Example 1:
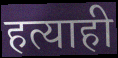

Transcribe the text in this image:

हत्याही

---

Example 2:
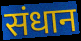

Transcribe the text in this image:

संधान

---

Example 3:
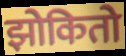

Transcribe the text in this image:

झोकितो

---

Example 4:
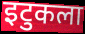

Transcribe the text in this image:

इटुकला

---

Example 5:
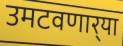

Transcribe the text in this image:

उमटवणार्‍या